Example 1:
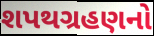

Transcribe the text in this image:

શપથગ્રહણનો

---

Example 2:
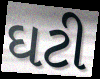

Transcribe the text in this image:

ઘટી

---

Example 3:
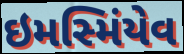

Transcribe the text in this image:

ઇમસ્મિંયેવ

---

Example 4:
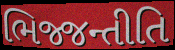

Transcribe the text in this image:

ભિજ્જન્તીતિ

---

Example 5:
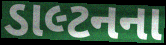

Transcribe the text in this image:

ડાલ્ટનના